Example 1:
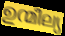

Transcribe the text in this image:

ഉന്മീല്യ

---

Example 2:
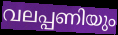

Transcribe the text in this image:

വലപ്പണിയും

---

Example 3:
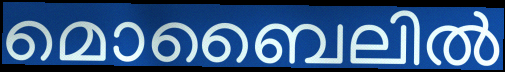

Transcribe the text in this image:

മൊബൈലിൽ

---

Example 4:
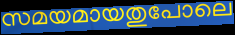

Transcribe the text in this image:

സമയമായതുപോലെ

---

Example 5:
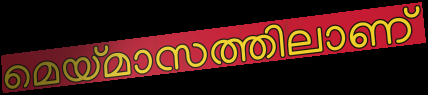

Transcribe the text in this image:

മെയ്മാസത്തിലാണ്